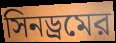
সিনড্রমের